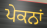
ਪੇਕਨਾਂ